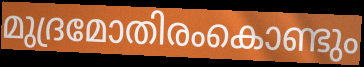
മുദ്രമോതിരംകൊണ്ടും